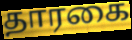
தாரகை